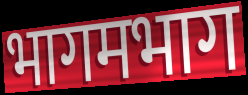
भागमभाग